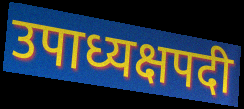
उपाध्यक्षपदी